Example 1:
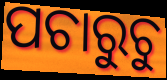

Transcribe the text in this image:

ପଚାରୁଚୁ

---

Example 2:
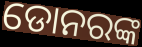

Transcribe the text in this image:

ଡୋନରଙ୍କ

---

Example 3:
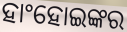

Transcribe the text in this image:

ହାଂହୋଇଙ୍କର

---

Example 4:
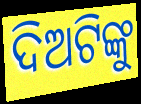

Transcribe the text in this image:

ଦିଅଟିଙ୍କୁ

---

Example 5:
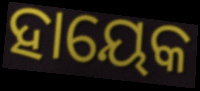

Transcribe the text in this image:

ହାୟେକ